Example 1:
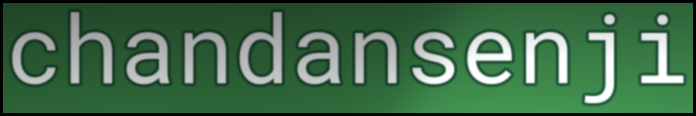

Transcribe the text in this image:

chandansenji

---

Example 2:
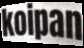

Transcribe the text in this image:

koipan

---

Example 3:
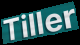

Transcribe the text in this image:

Tiller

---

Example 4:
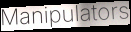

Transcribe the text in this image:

Manipulators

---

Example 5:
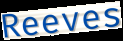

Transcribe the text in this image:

Reeves